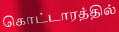
கொட்டாரத்தில்